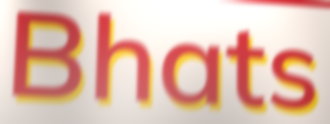
Bhats